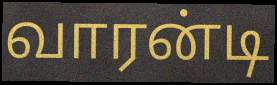
வாரன்டி